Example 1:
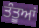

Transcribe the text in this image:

ਤੰਤੂਆਂ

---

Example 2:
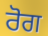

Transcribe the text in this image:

ਰੋਗ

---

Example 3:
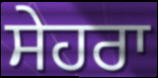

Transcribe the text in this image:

ਸੇਹਰਾ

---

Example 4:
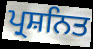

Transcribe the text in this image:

ਪ੍ਰਸ਼ਨਿਤ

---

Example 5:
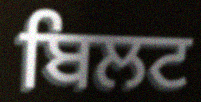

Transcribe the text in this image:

ਬਿਲਟ